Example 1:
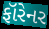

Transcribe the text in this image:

ફૉરેનર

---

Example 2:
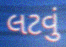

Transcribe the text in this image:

લટવું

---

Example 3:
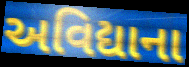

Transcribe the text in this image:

અવિદ્યાના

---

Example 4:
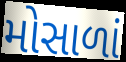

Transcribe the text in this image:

મોસાળાં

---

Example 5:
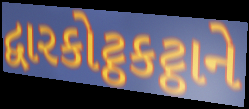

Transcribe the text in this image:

દ્વારકોટ્ઠકટ્ઠાને